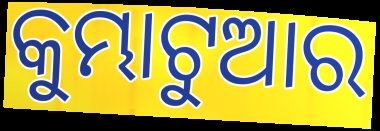
କୁମ୍ଭାଟୁଆର